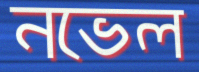
নভেল